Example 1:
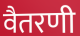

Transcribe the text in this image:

वैतरणी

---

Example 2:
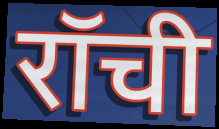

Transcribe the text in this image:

रॉची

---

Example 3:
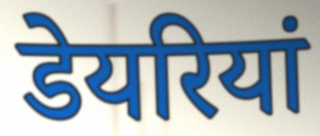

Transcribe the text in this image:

डेयरियां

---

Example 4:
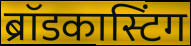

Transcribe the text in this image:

ब्रॉडकास्टिंग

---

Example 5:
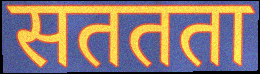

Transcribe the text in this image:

सततता